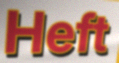
Heft